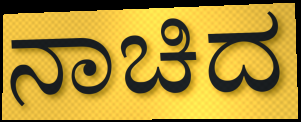
ನಾಚಿದ